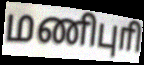
மணிபுரி